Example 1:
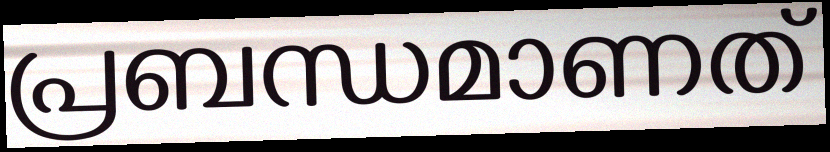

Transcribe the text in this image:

പ്രബന്ധമാണത്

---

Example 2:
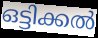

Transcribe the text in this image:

ഒട്ടിക്കൽ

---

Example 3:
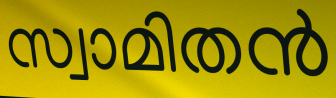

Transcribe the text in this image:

സ്വാമിതൻ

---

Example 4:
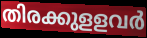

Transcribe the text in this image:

തിരക്കുളളവർ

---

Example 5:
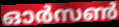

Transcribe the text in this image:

ഓർസൺ